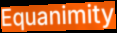
Equanimity